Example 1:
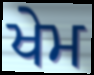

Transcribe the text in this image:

ਖੇਮ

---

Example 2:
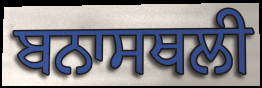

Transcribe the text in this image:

ਬਨਾਸਥਲੀ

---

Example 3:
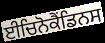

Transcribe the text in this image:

ਈਚਿਨੋਕੈਂਡਿਨਸ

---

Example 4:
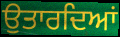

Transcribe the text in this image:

ਉਤਾਰਦਿਆਂ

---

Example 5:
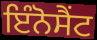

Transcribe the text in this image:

ਇੰਨੋਸੈਂਟ